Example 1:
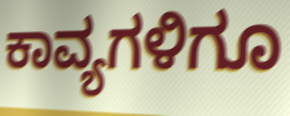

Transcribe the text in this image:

ಕಾವ್ಯಗಳಿಗೂ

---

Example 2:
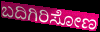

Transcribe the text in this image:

ಬದಿಗಿರಿಸೋಣ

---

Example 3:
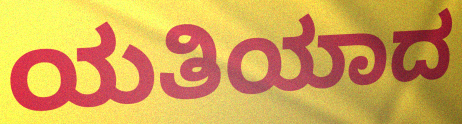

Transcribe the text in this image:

ಯತಿಯಾದ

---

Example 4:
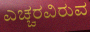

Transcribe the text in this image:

ಎಚ್ಚರವಿರುವ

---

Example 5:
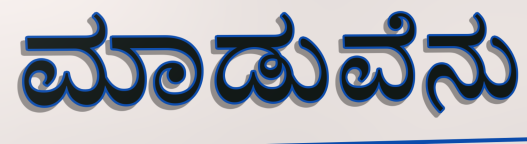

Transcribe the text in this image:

ಮಾಡುವೆನು